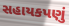
સહાયકપણું